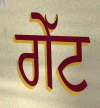
ਗੇੱਟ